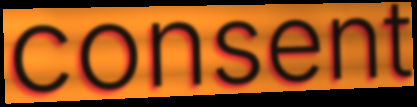
consent